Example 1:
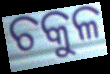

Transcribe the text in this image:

ଚକୁଳ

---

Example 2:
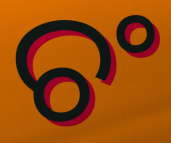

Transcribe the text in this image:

ଚଂ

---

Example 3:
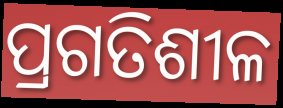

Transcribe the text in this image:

ପ୍ରଗତିଶୀଳ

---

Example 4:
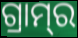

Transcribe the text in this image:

ଗ୍ରାମ୍‌ର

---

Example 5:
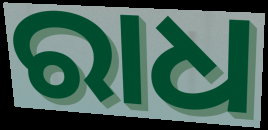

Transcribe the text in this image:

ରାଧ